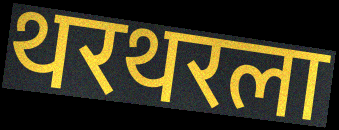
थरथरला